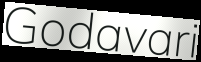
Godavari